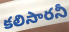
కలిసారనీ